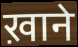
ख़ाने